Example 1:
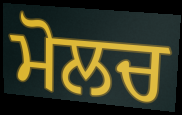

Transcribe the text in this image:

ਮੋਲਚ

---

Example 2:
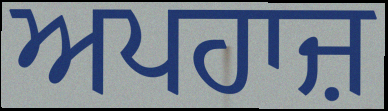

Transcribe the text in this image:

ਅਪਹਾਜ਼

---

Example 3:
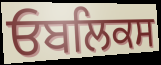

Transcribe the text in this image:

ਓਬਲਿਕਸ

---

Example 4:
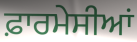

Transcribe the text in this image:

ਫ਼ਾਰਮੇਸੀਆਂ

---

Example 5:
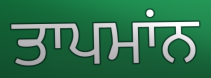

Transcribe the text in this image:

ਤਾਪਮਾਂਨ